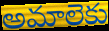
అమాలెకు